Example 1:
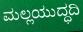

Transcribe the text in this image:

ಮಲ್ಲಯುದ್ಧದಿ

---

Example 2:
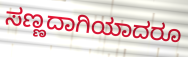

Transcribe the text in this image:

ಸಣ್ಣದಾಗಿಯಾದರೂ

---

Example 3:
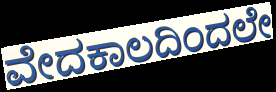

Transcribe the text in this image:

ವೇದಕಾಲದಿಂದಲೇ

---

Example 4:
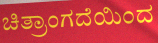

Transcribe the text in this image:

ಚಿತ್ರಾಂಗದೆಯಿಂದ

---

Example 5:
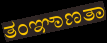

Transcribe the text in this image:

ತಂಞಾಣತಾ